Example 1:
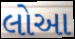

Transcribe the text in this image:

લોઆ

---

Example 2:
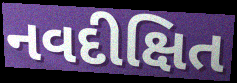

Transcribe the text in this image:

નવદીક્ષિત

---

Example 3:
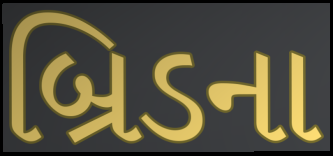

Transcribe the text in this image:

બ્રિડના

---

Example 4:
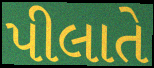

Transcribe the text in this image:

પીલાતે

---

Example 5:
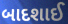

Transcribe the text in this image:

બાદશાઈ